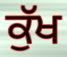
ਕੁੱਖ